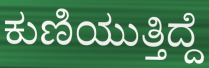
ಕುಣಿಯುತ್ತಿದ್ದೆ